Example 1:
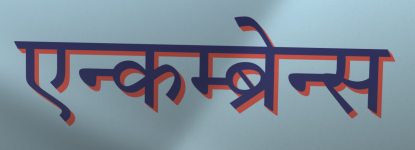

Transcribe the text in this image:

एन्कम्ब्रेन्स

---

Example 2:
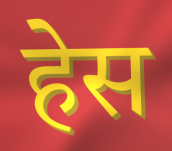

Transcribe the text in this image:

हेस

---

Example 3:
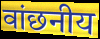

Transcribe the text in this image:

वांछनीय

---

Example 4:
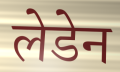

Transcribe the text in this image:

लेडेन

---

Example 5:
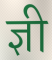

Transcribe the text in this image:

ज्ञी